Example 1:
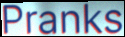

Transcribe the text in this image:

Pranks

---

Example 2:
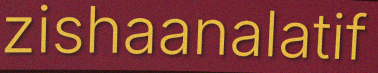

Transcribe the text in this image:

zishaanalatif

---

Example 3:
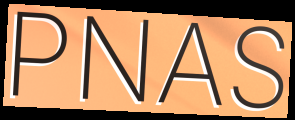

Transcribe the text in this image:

PNAS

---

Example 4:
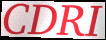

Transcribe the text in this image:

CDRI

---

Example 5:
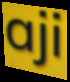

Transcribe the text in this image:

aji